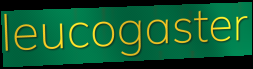
leucogaster